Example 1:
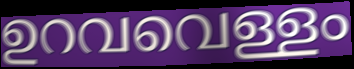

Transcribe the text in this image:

ഉറവവെള്ളം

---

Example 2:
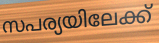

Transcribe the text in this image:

സപര്യയിലേക്ക്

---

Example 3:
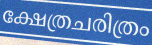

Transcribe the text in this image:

ക്ഷേത്രചരിത്രം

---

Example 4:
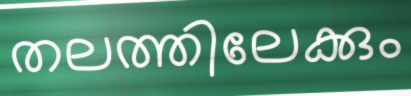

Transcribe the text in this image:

തലത്തിലേക്കും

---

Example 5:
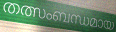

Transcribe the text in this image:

തത്സംബന്ധമായ